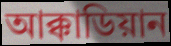
আক্কাডিয়ান